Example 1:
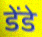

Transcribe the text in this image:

डेंडे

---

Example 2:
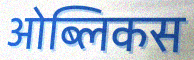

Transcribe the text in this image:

ओब्लिकस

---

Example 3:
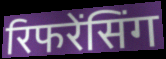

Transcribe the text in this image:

रिफरेंसिंग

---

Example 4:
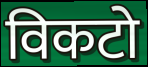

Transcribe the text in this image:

विकटो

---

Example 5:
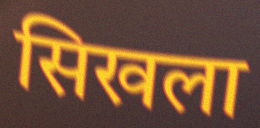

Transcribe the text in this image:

सिखला